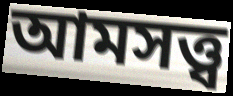
আমসত্ত্ব